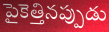
పైకెత్తినప్పుడు